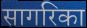
सागरिका